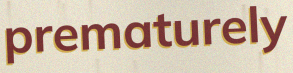
prematurely